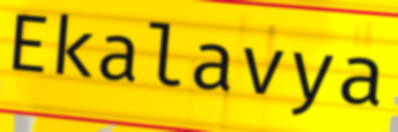
Ekalavya